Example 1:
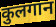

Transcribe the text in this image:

कुलगान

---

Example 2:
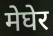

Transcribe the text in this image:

मेघेर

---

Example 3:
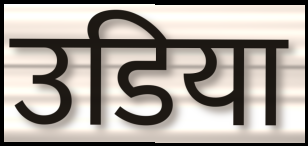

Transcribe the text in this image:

उडिया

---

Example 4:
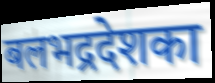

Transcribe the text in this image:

बलभद्रदेशका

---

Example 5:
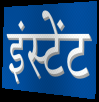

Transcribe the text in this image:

इंस्टेंट